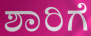
ಶಾರಿಗೆ